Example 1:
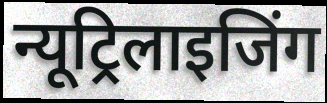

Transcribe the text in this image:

न्यूट्रिलाइजिंग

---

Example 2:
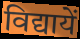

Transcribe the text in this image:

विद्यायें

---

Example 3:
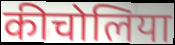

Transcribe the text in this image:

कीचोलिया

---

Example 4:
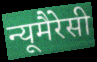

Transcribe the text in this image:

न्यूमैरेसी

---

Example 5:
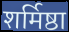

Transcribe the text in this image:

शर्मिष्ठा